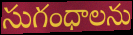
సుగంధాలను